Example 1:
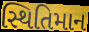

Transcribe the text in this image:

સ્થિતિમાન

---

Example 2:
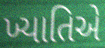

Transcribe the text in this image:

ખ્યાતિએ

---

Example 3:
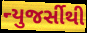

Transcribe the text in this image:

ન્યુજર્સીથી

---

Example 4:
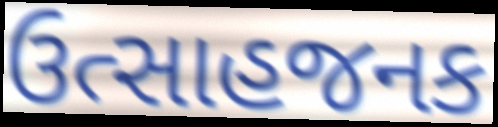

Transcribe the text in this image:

ઉત્સાહજનક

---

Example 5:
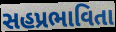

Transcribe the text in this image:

સહપ્રભાવિતા